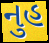
નુહ